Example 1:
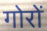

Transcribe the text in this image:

गोरों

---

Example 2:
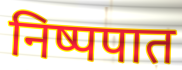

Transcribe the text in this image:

निष्पपात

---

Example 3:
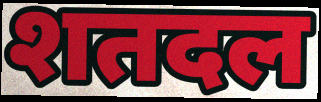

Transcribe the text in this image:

शतदल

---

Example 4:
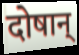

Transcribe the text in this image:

दोषान्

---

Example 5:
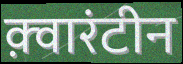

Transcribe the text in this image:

क़्वारंटीन